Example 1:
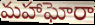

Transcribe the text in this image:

మహాఘోరా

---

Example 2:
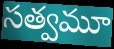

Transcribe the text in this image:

సత్వమూ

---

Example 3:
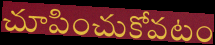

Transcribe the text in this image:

చూపించుకోవటం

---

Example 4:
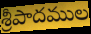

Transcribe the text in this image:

శ్రీపాదముల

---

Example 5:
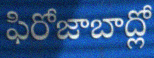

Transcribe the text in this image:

ఫిరోజాబాద్లో